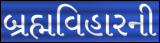
બ્રહ્મવિહારની